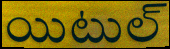
యిటుల్